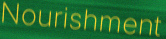
Nourishment